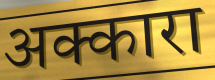
अक्कारा